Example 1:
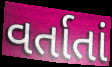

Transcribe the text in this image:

વર્તાતાં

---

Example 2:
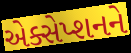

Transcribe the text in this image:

એક્સેપ્શનને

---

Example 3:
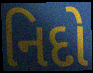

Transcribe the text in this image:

નિદો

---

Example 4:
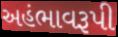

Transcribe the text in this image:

અહંભાવરૂપી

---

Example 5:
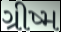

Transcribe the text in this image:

ગ્રીષ્મ